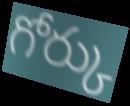
గోర్కు